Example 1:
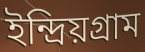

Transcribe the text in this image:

ইন্দ্রিয়গ্রাম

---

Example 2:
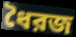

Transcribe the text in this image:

ধৈরজ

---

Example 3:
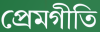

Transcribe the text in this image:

প্রেমগীতি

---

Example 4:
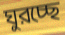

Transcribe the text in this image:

ঘুরচ্ছে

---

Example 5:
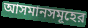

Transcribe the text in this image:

আসমানসমূহের